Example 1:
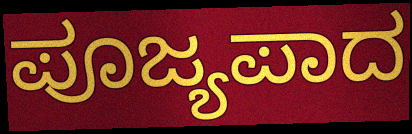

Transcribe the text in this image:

ಪೂಜ್ಯಪಾದ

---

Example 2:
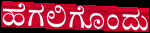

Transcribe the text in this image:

ಹೆಗಲಿಗೊಂದು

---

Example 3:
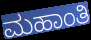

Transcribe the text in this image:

ಮಹಾಂತಿ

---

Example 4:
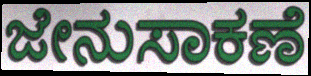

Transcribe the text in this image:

ಜೇನುಸಾಕಣೆ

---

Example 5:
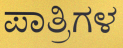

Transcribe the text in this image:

ಪಾತ್ರಿಗಳ